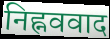
निह्नववाद